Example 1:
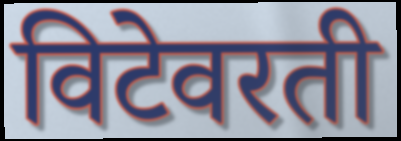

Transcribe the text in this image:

विटेवरती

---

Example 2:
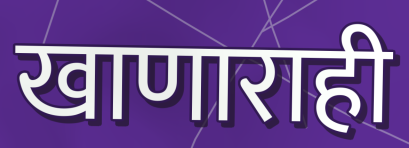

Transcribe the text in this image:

खाणाराही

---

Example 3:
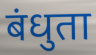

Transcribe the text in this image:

बंधुता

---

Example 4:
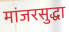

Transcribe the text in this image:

मांजरसुद्धा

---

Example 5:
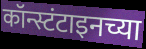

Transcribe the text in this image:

कॉन्स्टंटाइनच्या